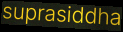
suprasiddha